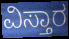
ವಿಸ್ತಾರ